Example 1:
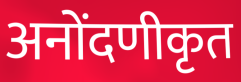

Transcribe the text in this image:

अनोंदणीकृत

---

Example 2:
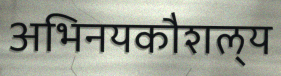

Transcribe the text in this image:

अभिनयकौशल्य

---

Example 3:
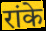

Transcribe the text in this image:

रांके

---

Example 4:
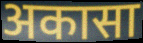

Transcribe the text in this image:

अकासा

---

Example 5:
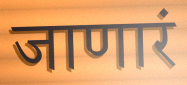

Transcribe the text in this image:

जाणारं